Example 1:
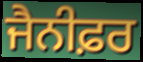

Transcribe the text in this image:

ਜੈਨੀਫ਼ਰ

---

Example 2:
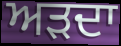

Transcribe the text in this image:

ਅੜਦਾ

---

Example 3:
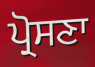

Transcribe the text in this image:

ਪ੍ਰੋਸਣਾ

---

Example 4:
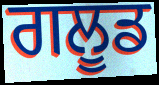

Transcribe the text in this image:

ਗਲੂਡ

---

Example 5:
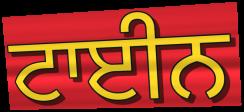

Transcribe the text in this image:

ਟਾਈਨ